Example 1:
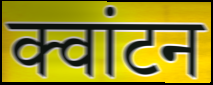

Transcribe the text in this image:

क्वांटन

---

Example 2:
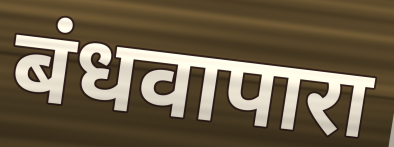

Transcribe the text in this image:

बंधवापारा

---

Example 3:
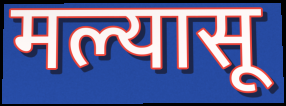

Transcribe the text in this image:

मल्यासू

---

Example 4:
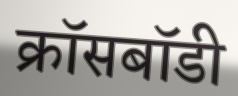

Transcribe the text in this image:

क्रॉसबॉडी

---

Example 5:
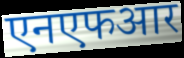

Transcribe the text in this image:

एनएफआर